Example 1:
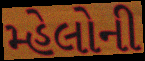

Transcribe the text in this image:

મ્હેલોની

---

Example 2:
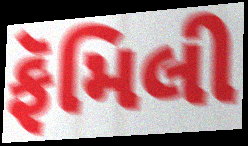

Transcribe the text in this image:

ફૅમિલી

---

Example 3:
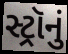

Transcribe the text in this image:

સ્ટ્રૉનું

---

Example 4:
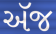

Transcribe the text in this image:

ઍજ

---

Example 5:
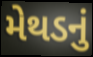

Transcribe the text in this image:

મેથડનું